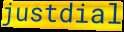
justdial